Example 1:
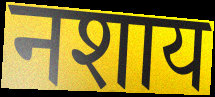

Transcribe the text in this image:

नशाय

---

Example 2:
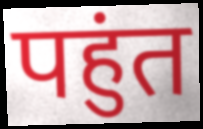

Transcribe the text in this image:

पहुंत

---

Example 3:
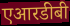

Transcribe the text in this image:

एआरडीबी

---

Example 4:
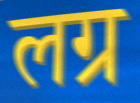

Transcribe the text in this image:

लग्र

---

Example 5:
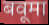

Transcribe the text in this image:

बवूमा